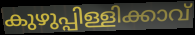
കുഴുപ്പിള്ളിക്കാവ്